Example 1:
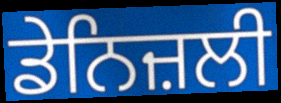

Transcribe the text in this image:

ਡੇਨਿਜ਼ਲੀ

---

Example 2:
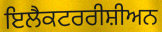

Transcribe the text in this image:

ਇਲੈਕਟਰਰੀਸ਼ੀਅਨ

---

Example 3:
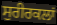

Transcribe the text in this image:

ਸੁਰੀਰਕਲਾਂ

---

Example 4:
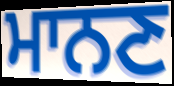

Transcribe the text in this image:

ਮਾਨਣ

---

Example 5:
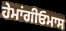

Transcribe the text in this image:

ਹੇਮਾਂਗੀਓਮਾਸ